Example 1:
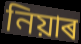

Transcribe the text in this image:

নিয়াৰ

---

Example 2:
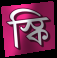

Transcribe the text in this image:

স্কি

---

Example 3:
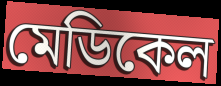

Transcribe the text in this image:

মেডিকেল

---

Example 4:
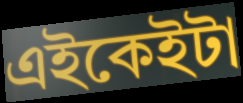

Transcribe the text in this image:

এইকেইটা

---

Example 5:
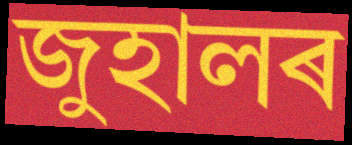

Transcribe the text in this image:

জুহালৰ